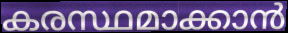
കരസ്ഥമാക്കാൻ